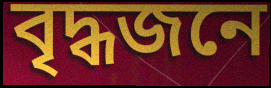
বৃদ্ধজনে